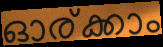
ഓര്ക്കാം